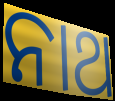
ନାଥ